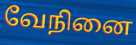
வேநினை